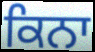
ਕਿਨਾ